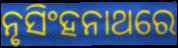
ନୃସିଂହନାଥରେ